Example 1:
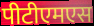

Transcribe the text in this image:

पीटीएमएस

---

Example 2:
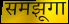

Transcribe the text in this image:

समझूगा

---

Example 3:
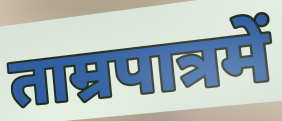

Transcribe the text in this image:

ताम्रपात्रमें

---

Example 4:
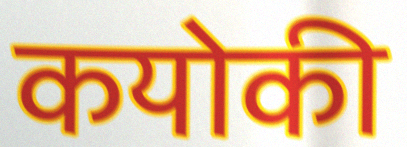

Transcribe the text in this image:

कयोकी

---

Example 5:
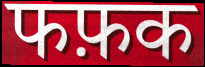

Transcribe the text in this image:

फफ़क